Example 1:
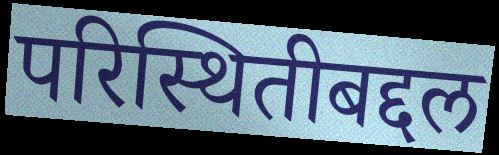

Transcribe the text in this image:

परिस्थितीबद्दल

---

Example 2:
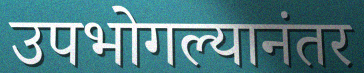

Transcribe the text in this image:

उपभोगल्यानंतर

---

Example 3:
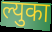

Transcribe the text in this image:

ल्युका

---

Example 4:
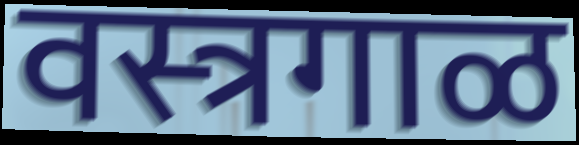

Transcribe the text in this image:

वस्त्रगाळ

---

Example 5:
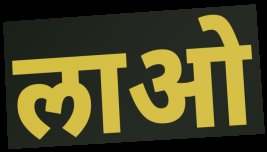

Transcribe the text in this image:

लाओ